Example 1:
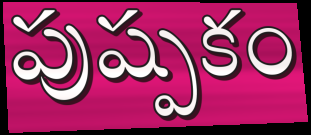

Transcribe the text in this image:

పుష్పకం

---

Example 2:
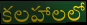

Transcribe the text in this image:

కలహాలలో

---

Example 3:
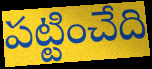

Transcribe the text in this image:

పట్టించేది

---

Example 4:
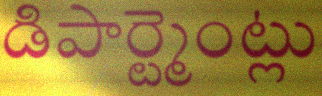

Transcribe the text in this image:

డిపార్ట్మెంట్లు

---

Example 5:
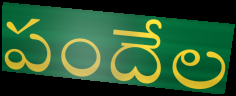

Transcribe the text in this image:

పందేల